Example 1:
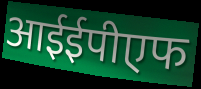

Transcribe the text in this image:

आईईपीएफ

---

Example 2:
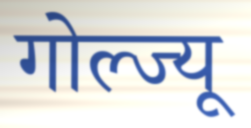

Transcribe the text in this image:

गोल्ज्यू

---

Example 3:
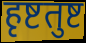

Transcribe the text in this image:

हृष्टतुष्ट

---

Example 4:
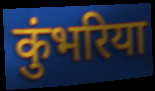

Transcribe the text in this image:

कुंभरिया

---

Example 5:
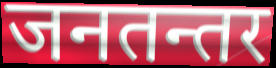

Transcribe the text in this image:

जनतन्तर